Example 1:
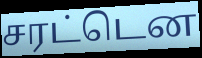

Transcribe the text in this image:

சரட்டென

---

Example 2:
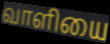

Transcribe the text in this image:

வாளியை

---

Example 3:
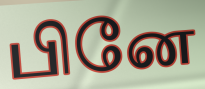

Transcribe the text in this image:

பினே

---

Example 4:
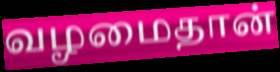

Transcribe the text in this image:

வழமைதான்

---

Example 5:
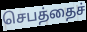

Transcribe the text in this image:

செபத்தைச்